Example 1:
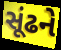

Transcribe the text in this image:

સૂંઢને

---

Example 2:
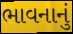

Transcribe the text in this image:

ભાવનાનું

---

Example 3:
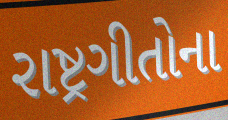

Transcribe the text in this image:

રાષ્ટ્રગીતોના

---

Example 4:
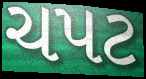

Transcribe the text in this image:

ચપટ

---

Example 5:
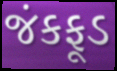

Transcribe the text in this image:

જંકફૂડ